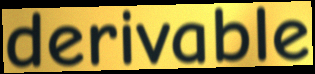
derivable